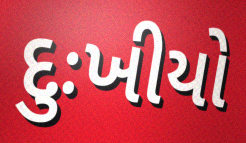
દુઃખીયો